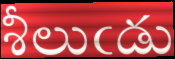
శీలుఁడు